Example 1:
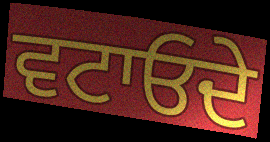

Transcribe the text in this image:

ਵਟਾਓਦੇ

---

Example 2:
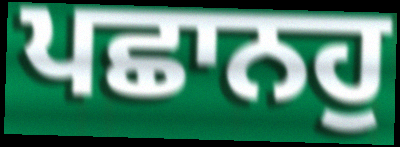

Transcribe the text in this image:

ਪਛਾਨਹੁ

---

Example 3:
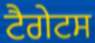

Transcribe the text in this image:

ਟੈਗੇਟਸ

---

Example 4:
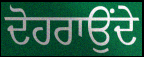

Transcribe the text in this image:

ਦੋਹਰਾਉਂਦੇ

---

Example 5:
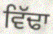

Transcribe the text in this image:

ਵਿੱਢਾ